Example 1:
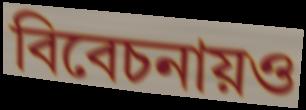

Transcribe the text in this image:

বিবেচনায়ও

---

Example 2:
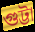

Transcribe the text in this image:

গুট্টা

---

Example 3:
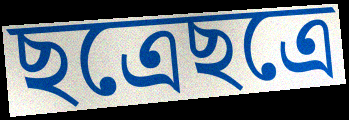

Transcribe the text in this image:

ছত্রেছত্রে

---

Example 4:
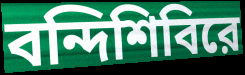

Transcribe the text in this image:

বন্দিশিবিরে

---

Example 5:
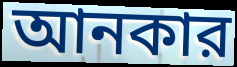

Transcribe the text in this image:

আনকার